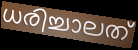
ധരിച്ചാലത്